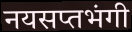
नयसप्तभंगी